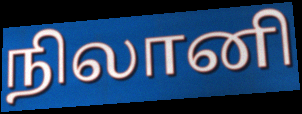
நிலானி